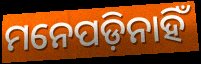
ମନେପଡ଼ିନାହିଁ